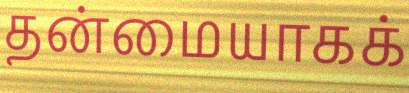
தன்மையாகக்